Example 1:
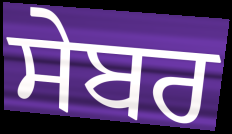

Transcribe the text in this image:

ਸੇਬਰ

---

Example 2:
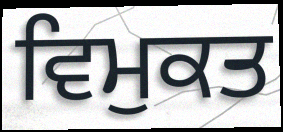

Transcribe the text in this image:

ਵਿਮੁਕਤ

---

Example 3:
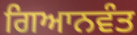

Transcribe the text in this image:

ਗਿਆਨਵੰਤ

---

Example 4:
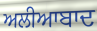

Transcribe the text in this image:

ਅਲੀਆਬਾਦ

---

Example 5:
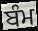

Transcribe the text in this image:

ਬੰਮ